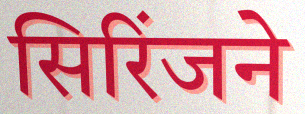
सिरिंजने